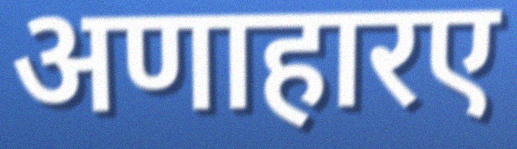
अणाहारए